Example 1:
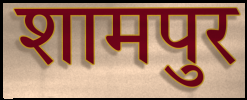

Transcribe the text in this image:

शामपुर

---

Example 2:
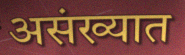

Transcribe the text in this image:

असंख्यात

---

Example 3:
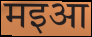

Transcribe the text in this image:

मइआ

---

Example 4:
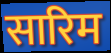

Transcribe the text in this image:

सारिम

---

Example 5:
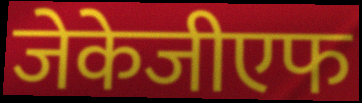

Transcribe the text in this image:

जेकेजीएफ